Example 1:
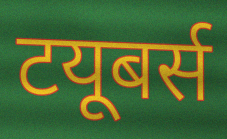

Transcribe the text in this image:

टयूबर्स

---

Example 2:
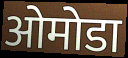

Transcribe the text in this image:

ओमोडा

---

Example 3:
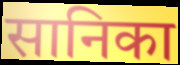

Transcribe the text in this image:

सानिका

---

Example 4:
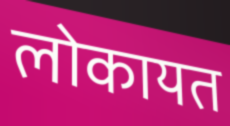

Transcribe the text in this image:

लोकायत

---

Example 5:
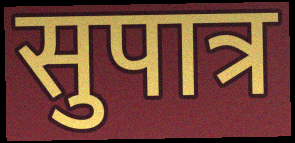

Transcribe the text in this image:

सुपात्र